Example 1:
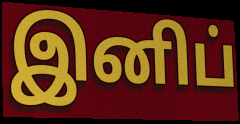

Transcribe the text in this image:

இனிப்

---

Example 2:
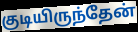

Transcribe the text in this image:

குடியிருந்தேன்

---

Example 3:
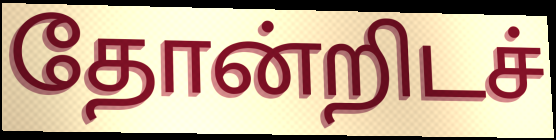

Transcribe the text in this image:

தோன்றிடச்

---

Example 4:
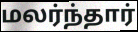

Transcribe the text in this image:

மலர்ந்தார்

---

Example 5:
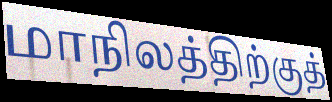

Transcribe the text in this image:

மாநிலத்திற்குத்